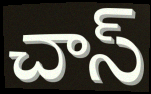
చాస్